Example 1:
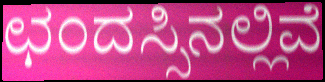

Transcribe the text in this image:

ಛಂದಸ್ಸಿನಲ್ಲಿವೆ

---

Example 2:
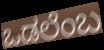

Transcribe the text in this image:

ಒಡಲೆಂಬ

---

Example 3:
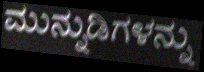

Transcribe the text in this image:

ಮುನ್ನುಡಿಗಳನ್ನು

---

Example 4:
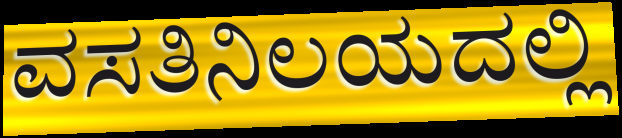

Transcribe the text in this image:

ವಸತಿನಿಲಯದಲ್ಲಿ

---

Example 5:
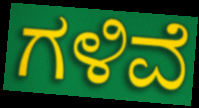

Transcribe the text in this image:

ಗಳಿವೆ